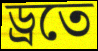
ড্রতে